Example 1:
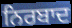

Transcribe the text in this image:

ਨਿਰਬਾਦ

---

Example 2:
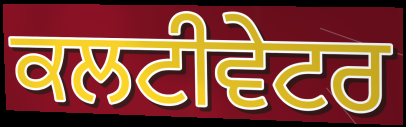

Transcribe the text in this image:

ਕਲਟੀਵੇਟਰ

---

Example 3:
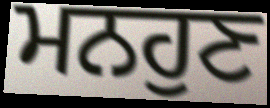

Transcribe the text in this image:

ਮਨਹੁਣ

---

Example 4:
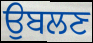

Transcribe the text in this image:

ਉਬਲਣ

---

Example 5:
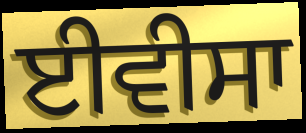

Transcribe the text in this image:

ਈਵੀਸਾ